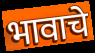
भावाचे